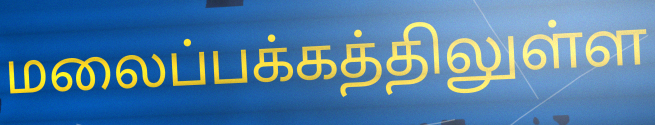
மலைப்பக்கத்திலுள்ள